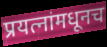
प्रयत्नांमधूनच